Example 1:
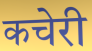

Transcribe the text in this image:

कचेरी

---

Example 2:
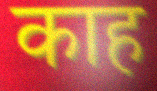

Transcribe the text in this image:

काह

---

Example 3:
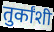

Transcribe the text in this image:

तुर्कांशी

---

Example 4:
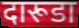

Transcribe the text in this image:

दारूडा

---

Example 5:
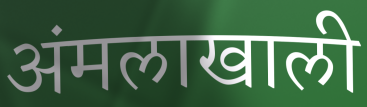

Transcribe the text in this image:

अंमलाखाली